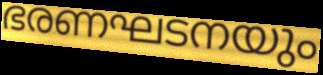
ഭരണഘടനയും